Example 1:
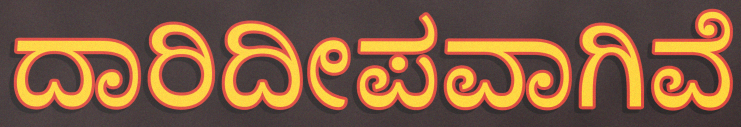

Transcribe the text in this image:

ದಾರಿದೀಪವಾಗಿವೆ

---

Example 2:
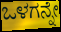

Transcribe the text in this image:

ಒಳಗನ್ನೇ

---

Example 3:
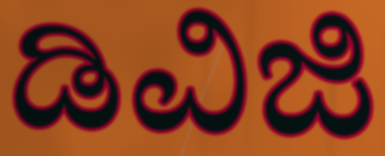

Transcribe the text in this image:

ಡಿವಿಜಿ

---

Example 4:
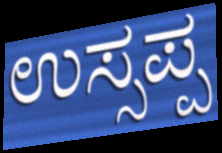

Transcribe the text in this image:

ಉಸ್ಸಪ್ಪ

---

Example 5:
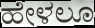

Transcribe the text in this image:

ಹೇಳಲೂ